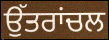
ਉੱਤਰਾਂਚਲ